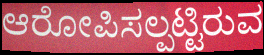
ಆರೋಪಿಸಲ್ಪಟ್ಟಿರುವ